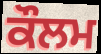
ਕੌਲਮ